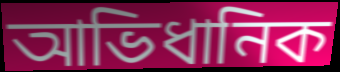
আভিধানিক